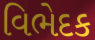
વિભેદક